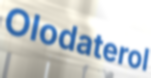
Olodaterol